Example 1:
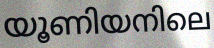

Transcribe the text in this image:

യൂണിയനിലെ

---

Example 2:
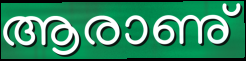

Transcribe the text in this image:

ആരാണു്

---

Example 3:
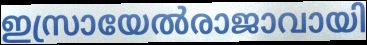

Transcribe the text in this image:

ഇസ്രായേൽരാജാവായി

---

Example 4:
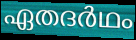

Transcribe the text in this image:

ഏതദർഥം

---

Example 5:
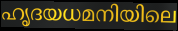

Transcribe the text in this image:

ഹൃദയധമനിയിലെ